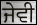
ਜੇਵੀ